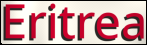
Eritrea